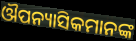
ଔପନ୍ୟାସିକମାନଙ୍କ